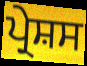
ਪ੍ਰੇਸ਼ਸ